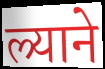
ल्याने